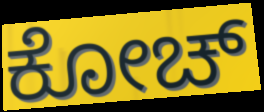
ಕೋಚ್